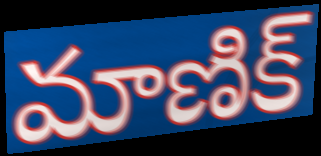
మాణిక్